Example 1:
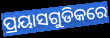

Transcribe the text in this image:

ପ୍ରୟାସଗୁଡିକରେ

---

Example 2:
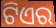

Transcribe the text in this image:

ଟିଏର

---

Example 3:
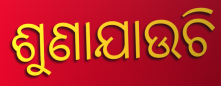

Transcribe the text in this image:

ଶୁଣାଯାଉଚି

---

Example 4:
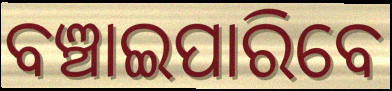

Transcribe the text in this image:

ବଞ୍ଚାଇପାରିବେ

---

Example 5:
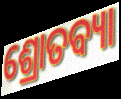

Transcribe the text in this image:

ଶ୍ରୋତବ୍ୟା